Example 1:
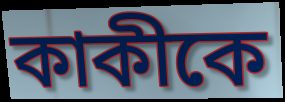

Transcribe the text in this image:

কাকীকে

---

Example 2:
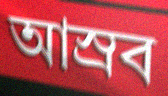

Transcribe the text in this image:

আস্রব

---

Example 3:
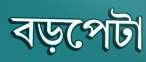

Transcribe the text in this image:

বড়পেটা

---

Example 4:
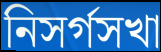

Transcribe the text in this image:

নিসর্গসখা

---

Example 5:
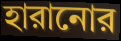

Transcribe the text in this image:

হারানোর